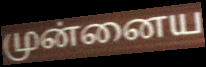
முன்னைய